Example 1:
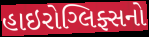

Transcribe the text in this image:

હાઇરોગ્લિફ્સનો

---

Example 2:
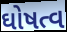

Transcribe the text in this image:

ઘોષત્વ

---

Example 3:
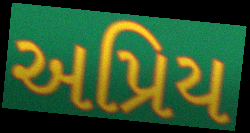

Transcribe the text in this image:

અપ્રિય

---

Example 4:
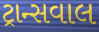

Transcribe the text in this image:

ટ્રાન્સવાલ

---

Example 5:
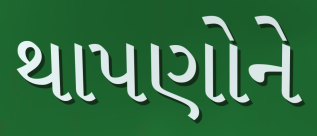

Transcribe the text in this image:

થાપણોને